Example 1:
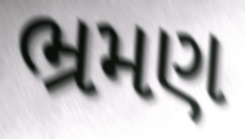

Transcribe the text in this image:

ભ્રમણ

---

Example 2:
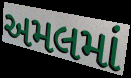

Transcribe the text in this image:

અમલમાં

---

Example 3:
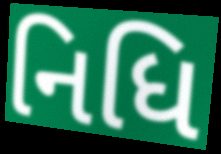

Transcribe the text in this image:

નિધિ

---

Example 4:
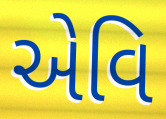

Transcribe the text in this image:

એવિ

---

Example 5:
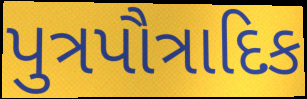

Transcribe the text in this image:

પુત્રપૌત્રાદિક